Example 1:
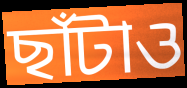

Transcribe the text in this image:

ছাঁটাও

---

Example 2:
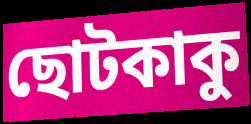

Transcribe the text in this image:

ছোটকাকু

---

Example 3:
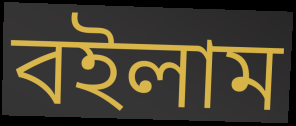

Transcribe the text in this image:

বইলাম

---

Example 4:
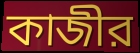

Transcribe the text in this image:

কাজীর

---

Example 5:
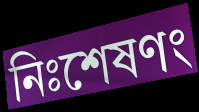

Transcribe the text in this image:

নিঃশেষণং